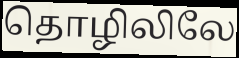
தொழிலிலே